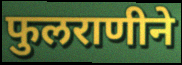
फुलराणीने